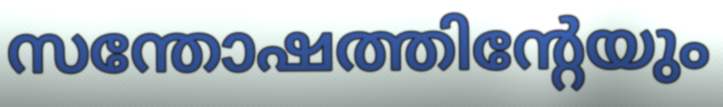
സന്തോഷത്തിന്റേയും